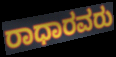
ರಾಧಾರವರು